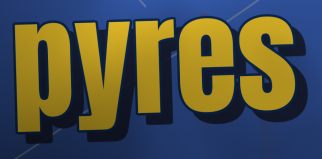
pyres